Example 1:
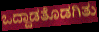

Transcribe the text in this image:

ಒದ್ದಾಡತೊಡಗಿತು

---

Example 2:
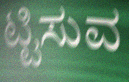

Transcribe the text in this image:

ಟ್ಟಿಸುವ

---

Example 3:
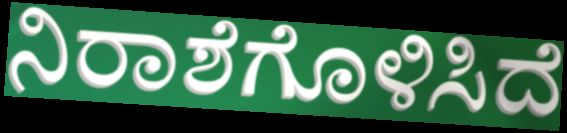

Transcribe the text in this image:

ನಿರಾಶೆಗೊಳಿಸಿದೆ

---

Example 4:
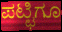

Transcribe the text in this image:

ಪಟ್ಟಿಗೂ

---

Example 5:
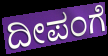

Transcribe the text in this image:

ದೀಪಂಗೆ